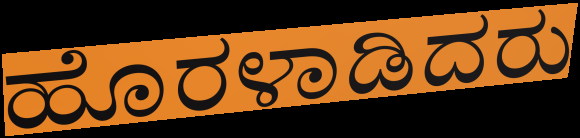
ಹೊರಳಾಡಿದರು